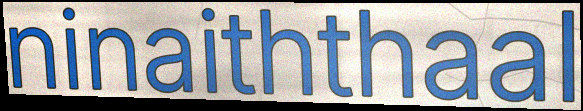
ninaiththaal